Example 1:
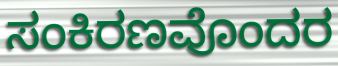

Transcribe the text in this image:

ಸಂಕಿರಣವೊಂದರ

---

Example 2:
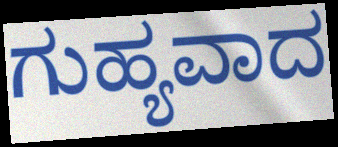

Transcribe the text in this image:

ಗುಹ್ಯವಾದ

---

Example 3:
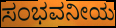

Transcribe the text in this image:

ಸಂಭವನೀಯ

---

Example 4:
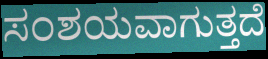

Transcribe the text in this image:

ಸಂಶಯವಾಗುತ್ತದೆ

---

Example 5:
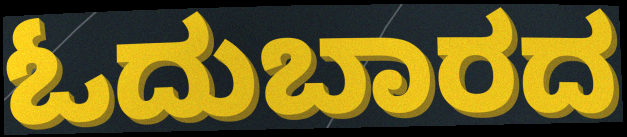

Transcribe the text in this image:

ಓದುಬಾರದ